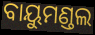
ବାୟୁମଣ୍ଡଲ